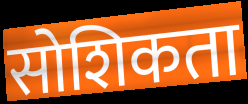
सोशिकता